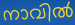
നാവിൽ